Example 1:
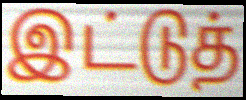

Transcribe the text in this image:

இட்டுத்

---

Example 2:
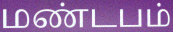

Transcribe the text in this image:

மண்டபம்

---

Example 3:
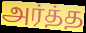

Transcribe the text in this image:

அர்த்த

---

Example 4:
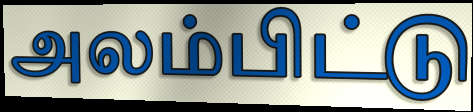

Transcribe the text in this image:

அலம்பிட்டு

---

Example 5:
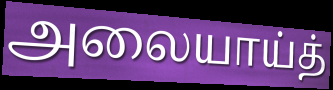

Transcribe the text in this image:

அலையாய்த்